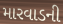
મારવાડની